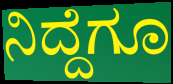
ನಿದ್ದೆಗೂ